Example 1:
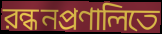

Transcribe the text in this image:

রন্ধনপ্রণালিতে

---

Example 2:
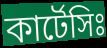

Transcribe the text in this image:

কার্টেসিঃ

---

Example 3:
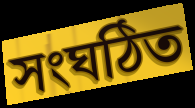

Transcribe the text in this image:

সংঘঠিত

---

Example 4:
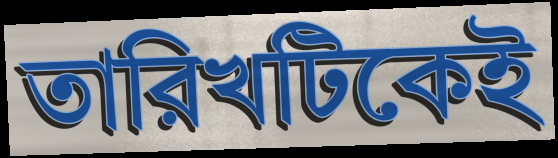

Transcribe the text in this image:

তারিখটিকেই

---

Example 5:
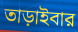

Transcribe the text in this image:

তাড়াইবার